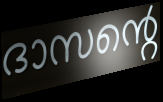
ദാസന്റെ